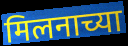
मिलनाच्या